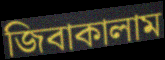
জিবাকালাম